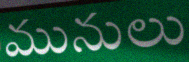
మునులు